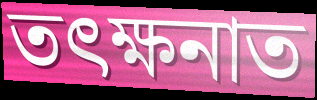
তৎক্ষনাত